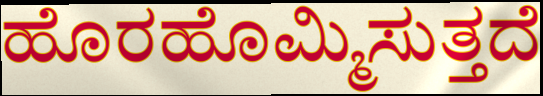
ಹೊರಹೊಮ್ಮಿಸುತ್ತದೆ